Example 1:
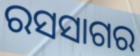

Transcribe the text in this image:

ରସସାଗର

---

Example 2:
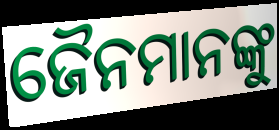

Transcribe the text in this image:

ଜୈନମାନଙ୍କୁ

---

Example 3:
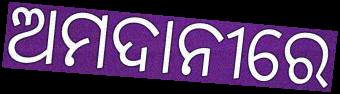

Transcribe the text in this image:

ଅମଦାନୀରେ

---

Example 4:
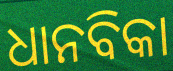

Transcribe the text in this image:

ଧାନବିକା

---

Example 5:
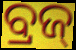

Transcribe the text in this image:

ବ୍ରଜ୍